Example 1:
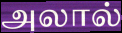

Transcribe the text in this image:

அலால்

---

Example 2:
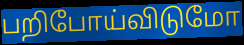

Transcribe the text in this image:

பறிபோய்விடுமோ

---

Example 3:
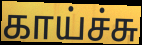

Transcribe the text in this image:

காய்ச்சு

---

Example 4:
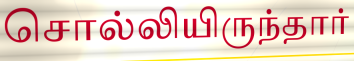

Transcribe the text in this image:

சொல்லியிருந்தார்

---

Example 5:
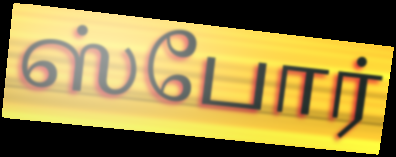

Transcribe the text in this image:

ஸ்போர்